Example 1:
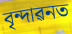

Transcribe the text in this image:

বৃন্দাৱনত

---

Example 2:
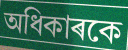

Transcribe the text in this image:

অধিকাৰকে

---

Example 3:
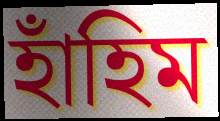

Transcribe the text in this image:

হাঁহিম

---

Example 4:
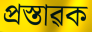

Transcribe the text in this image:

প্ৰস্তাৱক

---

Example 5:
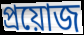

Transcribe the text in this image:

প্ৰয়োজ